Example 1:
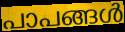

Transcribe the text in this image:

പാപങ്ങൾ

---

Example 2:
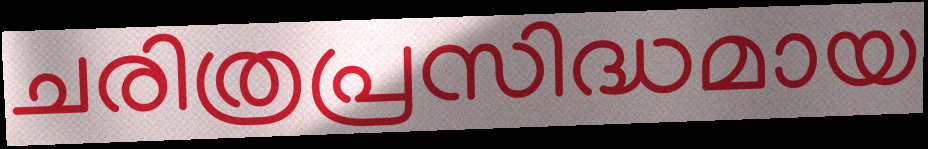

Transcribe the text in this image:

ചരിത്രപ്രസിദ്ധമായ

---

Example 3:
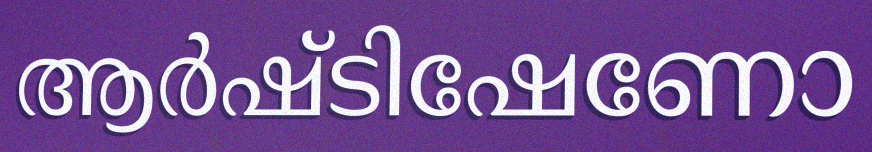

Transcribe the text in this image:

ആർഷ്ടിഷേണോ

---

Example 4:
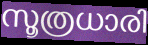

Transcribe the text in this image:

സൂത്രധാരി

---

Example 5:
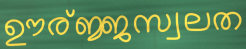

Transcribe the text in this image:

ഊര്ജ്ജസ്വലത